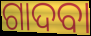
ଗାଦବା